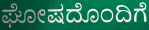
ಘೋಷದೊಂದಿಗೆ